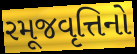
રમૂજવૃત્તિનો